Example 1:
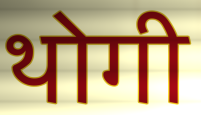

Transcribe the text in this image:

थोगी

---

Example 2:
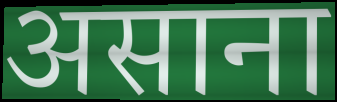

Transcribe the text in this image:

असाना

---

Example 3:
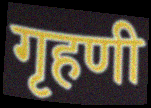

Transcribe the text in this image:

गृहणी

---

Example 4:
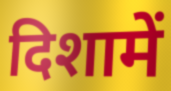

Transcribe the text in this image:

दिशामें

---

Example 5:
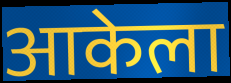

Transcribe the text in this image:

आकेला